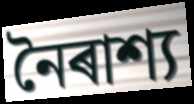
নৈৰাশ্য